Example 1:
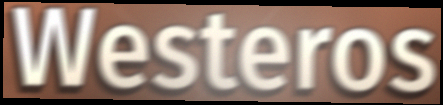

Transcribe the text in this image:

Westeros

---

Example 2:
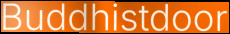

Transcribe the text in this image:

Buddhistdoor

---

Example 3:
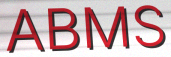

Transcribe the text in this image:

ABMS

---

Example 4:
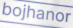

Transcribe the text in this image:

bojhanor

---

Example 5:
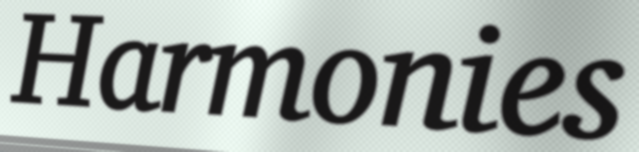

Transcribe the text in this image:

Harmonies